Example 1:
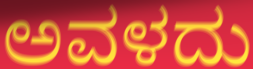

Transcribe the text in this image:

ಅವಳದು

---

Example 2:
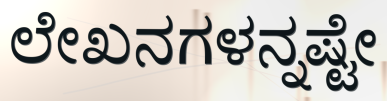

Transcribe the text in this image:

ಲೇಖನಗಳನ್ನಷ್ಟೇ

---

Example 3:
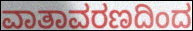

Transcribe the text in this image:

ವಾತಾವರಣದಿಂದ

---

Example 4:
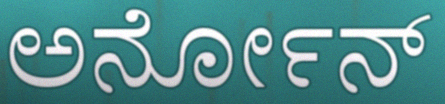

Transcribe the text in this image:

ಅರ್ನೋನ್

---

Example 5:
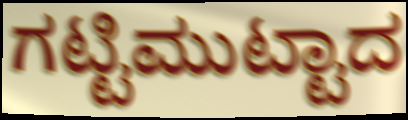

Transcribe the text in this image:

ಗಟ್ಟಿಮುಟ್ಟಾದ